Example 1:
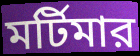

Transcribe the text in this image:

মর্টিমার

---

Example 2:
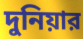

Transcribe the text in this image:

দুনিয়ার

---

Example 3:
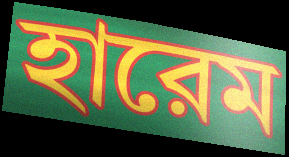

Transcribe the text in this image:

হারেম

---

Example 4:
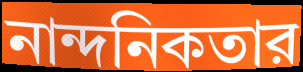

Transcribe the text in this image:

নান্দনিকতার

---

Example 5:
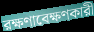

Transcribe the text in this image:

রক্ষণাবেক্ষণকারী